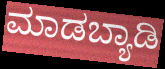
ಮಾಡಬ್ಯಾಡಿ